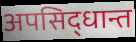
अपसिद्धान्त